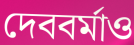
দেববর্মাও